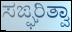
ಸಙ್ಘರಿತ್ವಾ